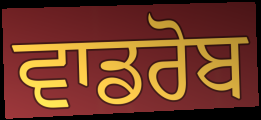
ਵਾਡਰੋਬ